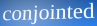
conjointed